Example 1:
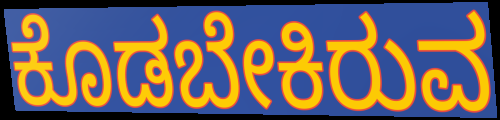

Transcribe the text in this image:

ಕೊಡಬೇಕಿರುವ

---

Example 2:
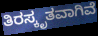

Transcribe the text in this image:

ತಿರಸ್ಕೃತವಾಗಿವೆ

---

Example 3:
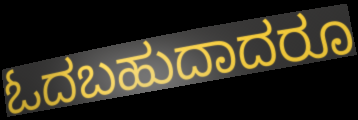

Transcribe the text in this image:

ಓದಬಹುದಾದರೂ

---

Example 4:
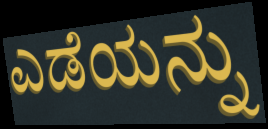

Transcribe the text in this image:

ಎಡೆಯನ್ನು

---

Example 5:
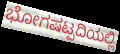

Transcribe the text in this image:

ಭೋಗಷಟ್ಪದಿಯಲ್ಲಿ